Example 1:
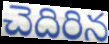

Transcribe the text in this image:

చెదిరిన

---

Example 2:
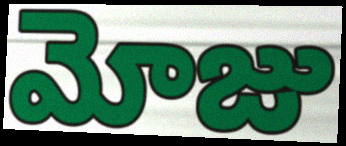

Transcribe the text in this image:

మోజు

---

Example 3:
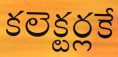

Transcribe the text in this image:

కలెక్టర్లకే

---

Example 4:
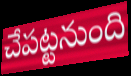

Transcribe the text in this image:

చేపట్టనుంది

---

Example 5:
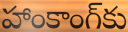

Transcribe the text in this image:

హాంకాంగ్‌కు